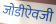
जोडीऐवजी